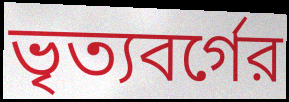
ভৃত্যবর্গের